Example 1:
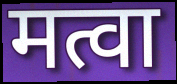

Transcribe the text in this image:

मत्वा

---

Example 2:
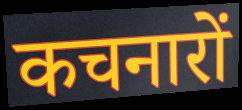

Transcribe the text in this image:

कचनारों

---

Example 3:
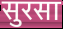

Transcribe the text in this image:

सुरसा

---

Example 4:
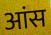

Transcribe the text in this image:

आंस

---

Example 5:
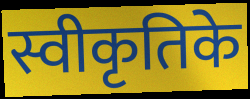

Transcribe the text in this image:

स्वीकृतिके